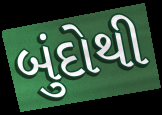
બુંદોથી